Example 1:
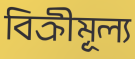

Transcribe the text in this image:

বিক্ৰীমূল্য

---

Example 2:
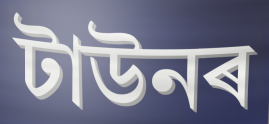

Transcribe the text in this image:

টাউনৰ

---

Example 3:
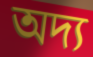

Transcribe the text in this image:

অদ্য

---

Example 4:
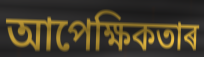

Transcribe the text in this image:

আপেক্ষিকতাৰ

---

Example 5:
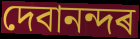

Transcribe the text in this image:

দেবানন্দৰ